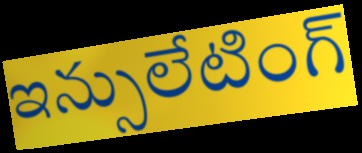
ఇన్సులేటింగ్